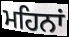
ਮਹਿਨਾਂ